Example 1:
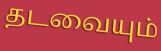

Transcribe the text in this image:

தடவையும்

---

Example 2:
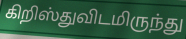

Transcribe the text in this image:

கிறிஸ்துவிடமிருந்து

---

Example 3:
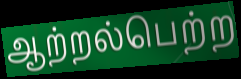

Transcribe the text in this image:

ஆற்றல்பெற்ற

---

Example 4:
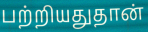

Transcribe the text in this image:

பற்றியதுதான்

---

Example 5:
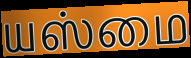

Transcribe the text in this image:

யஸ்மை